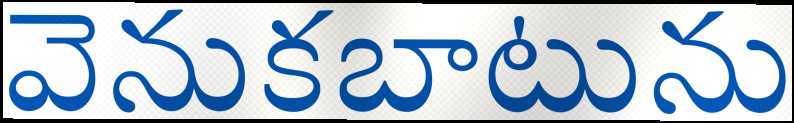
వెనుకబాటును